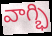
వాగ్భి